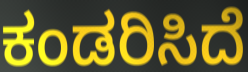
ಕಂಡರಿಸಿದೆ